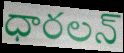
ధారలన్